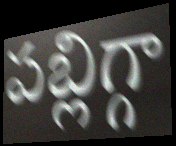
పబ్లిగ్గా